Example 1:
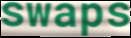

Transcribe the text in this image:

swaps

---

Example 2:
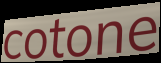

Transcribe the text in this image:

cotone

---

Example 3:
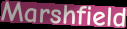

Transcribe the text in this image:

Marshfield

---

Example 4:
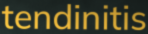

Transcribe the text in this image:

tendinitis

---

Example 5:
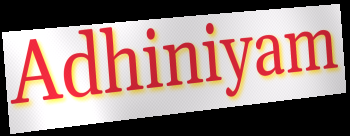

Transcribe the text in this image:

Adhiniyam